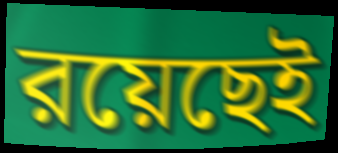
রয়েছেই